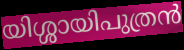
യിശ്ശായിപുത്രൻ